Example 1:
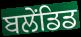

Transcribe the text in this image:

ਬਲੇਂਡਿਡ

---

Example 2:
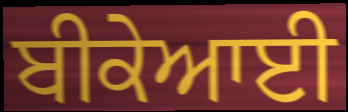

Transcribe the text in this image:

ਬੀਕੇਆਈ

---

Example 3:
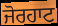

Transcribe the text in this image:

ਜੋਰਹਾਟ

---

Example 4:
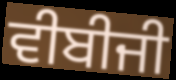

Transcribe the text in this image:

ਵੀਬੀਜੀ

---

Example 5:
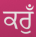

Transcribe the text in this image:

ਕਰੁਁ